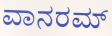
ವಾನರಮ್